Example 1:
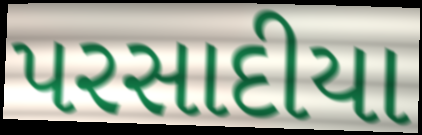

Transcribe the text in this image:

પરસાદીયા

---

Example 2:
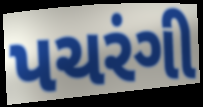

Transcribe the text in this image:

પચરંગી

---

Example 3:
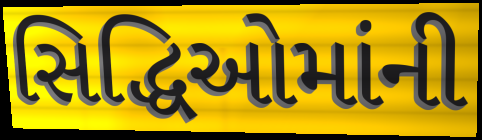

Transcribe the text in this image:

સિદ્ધિઓમાંની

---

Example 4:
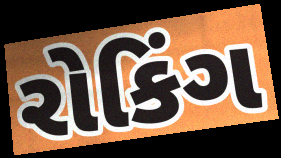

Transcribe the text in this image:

રોકિંગ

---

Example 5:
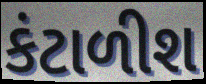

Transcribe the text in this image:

કંટાળીશ